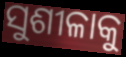
ସୁଶୀଳାକୁ